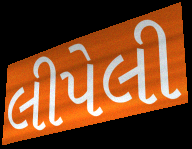
લીપેલી